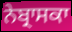
ਨੇਬ੍ਰਾਸਕਾ